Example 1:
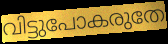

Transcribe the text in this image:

വിട്ടുപോകരുതേ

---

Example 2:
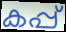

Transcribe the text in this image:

കപ്പ്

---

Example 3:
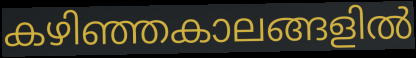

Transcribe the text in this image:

കഴിഞ്ഞകാലങ്ങളിൽ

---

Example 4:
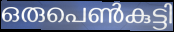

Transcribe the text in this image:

ഒരുപെൺകുട്ടി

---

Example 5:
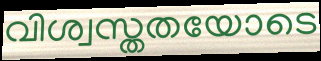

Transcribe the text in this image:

വിശ്വസ്തതയോടെ